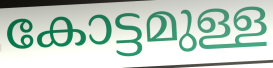
കോട്ടമുള്ള